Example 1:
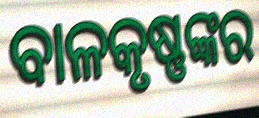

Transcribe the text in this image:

ବାଳକୃଷ୍ଣଙ୍କର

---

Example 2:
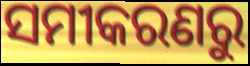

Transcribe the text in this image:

ସମୀକରଣରୁ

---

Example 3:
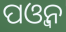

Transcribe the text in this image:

ପଓ୍ବନ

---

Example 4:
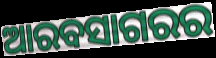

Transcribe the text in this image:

ଆରବସାଗରର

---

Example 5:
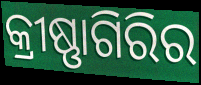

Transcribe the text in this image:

କ୍ରୀଷ୍ଣାଗିରିର